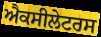
ਐਕਸੀਲੇਟਰਸ